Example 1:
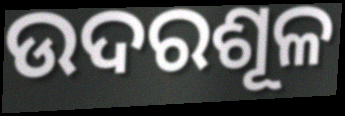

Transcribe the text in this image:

ଉଦରଶୂଳ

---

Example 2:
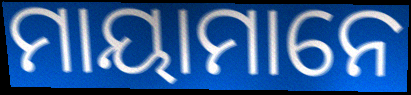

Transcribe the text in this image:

ମାୟାମାନେ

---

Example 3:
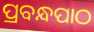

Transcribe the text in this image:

ପ୍ରବନ୍ଧପାଠ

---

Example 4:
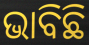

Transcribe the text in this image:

ଭାବିଛି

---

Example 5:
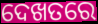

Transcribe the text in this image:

ଦେଖତରେ